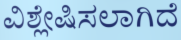
ವಿಶ್ಲೇಷಿಸಲಾಗಿದೆ